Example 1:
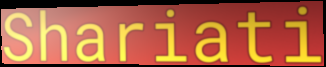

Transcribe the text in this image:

Shariati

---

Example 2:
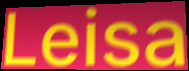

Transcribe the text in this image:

Leisa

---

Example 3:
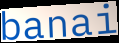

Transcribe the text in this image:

banai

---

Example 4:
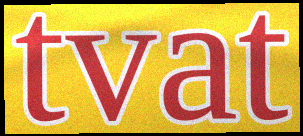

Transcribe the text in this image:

tvat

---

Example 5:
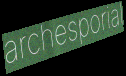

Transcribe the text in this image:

archesporial